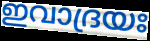
ഇവാദ്രയഃ